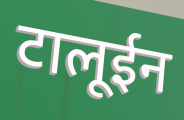
टालूईन